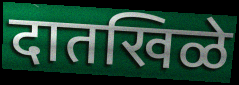
दातखिळे